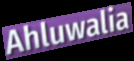
Ahluwalia